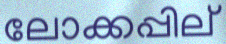
ലോക്കപ്പില്